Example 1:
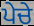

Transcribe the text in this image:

ਪੇਚੇ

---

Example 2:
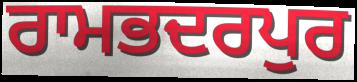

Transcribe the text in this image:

ਰਾਮਭਦਰਪੁਰ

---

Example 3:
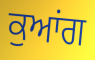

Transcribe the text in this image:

ਕੁਆਂਗ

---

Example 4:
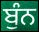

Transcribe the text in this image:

ਬੁੰਨ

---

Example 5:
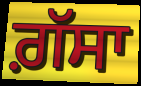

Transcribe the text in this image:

ਗ਼ੱਸਾ